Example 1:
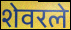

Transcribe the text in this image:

शेवरले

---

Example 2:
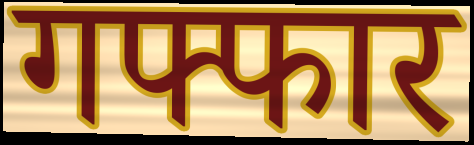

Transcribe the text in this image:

गफ्फार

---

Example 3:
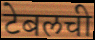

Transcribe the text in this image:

टेबलची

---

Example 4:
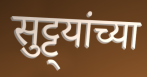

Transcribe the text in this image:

सुट्ट्यांच्या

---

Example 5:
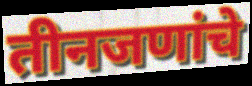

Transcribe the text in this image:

तीनजणांचे